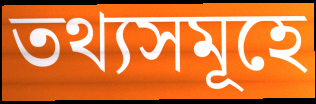
তথ্যসমূহে